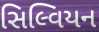
સિલ્વિયન